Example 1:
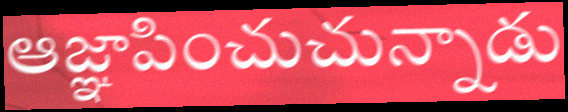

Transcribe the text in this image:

ఆజ్ఞాపించుచున్నాడు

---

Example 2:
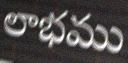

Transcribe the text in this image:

లాభము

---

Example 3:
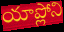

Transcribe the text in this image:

యాప్లోని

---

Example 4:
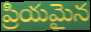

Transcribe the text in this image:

ప్రియమైన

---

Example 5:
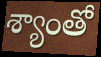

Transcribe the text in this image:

శ్యాంతో